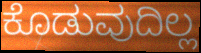
ಕೊಡುವುದಿಲ್ಲ